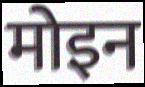
मोइन